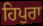
ਹਿਪੁਰਾ